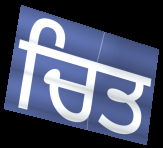
ਚਿਤ